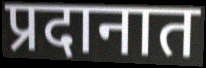
प्रदानात